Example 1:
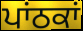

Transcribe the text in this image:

ਪਾਂਠਕਾਂ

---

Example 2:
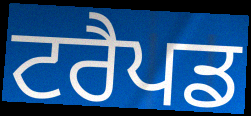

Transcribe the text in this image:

ਟਰੈਪਡ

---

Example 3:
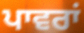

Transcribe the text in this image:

ਪਾਵਰਾਂ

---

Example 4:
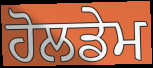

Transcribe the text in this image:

ਹੋਲਡੇਮ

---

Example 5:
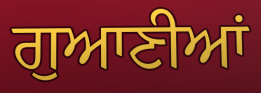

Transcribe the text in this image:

ਗੁਆਣੀਆਂ